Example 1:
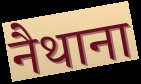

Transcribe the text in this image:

नैथाना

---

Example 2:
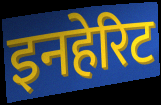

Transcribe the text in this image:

इनहेरिट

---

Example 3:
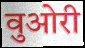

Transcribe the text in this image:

वुओरी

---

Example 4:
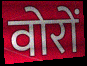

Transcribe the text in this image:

वोरों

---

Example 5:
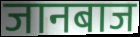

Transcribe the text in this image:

जानबाज